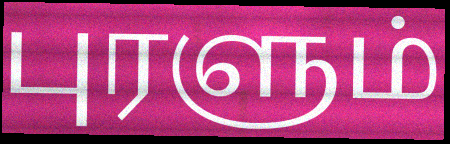
புரளும்